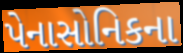
પેનાસોનિકના